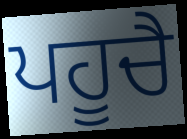
ਪਹੂਚੈ